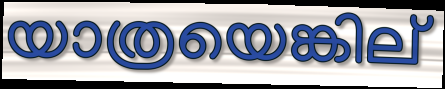
യാത്രയെങ്കില്